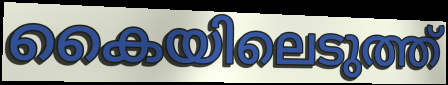
കൈയിലെടുത്ത്